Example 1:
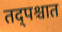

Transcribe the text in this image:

तद्पश्चात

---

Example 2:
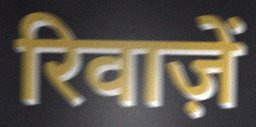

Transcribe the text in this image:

रिवाज़ें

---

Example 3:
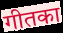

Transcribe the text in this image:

गीतका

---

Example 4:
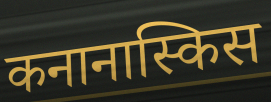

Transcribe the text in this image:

कनानास्किस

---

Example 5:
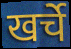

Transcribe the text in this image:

खर्चे